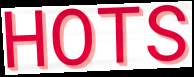
HOTS